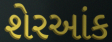
શેરઆંક